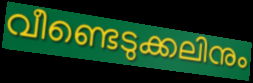
വീണ്ടെടുക്കലിനും